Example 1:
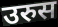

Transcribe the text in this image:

उरुस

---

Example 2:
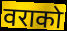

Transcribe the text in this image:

वराको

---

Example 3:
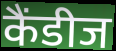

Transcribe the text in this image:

कैंडीज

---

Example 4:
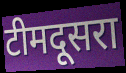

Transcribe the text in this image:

टीमदूसरा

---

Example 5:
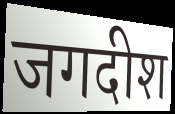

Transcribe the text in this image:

जगदीश